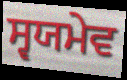
ਸ੍ਵਯਮੇਵ